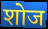
शोज